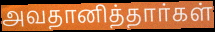
அவதானித்தார்கள்